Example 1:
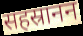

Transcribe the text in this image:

सहस्रानन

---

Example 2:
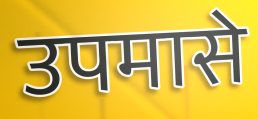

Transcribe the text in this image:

उपमासे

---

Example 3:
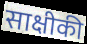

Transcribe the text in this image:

साक्षीकी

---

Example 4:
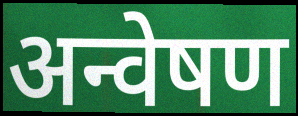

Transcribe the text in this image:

अन्वेषण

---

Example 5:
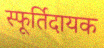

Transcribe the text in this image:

स्फूर्तिदायक